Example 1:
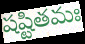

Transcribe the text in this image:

షష్టితమః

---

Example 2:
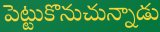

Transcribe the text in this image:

పెట్టుకొనుచున్నాడు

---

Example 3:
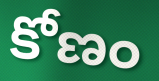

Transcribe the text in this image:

కోణం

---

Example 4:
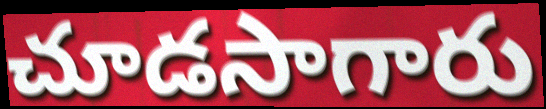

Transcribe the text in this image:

చూడసాగారు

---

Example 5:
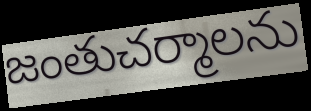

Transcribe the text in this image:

జంతుచర్మాలను